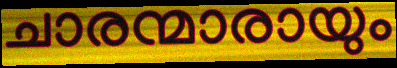
ചാരന്മാരായും